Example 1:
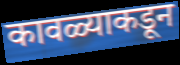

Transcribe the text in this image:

कावळ्याकडून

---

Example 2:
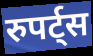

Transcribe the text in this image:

रुपर्ट्स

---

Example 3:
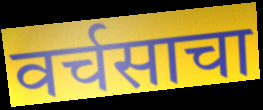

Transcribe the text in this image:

वर्चसाचा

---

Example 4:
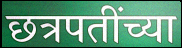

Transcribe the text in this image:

छत्रपतींच्या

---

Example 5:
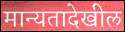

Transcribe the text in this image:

मान्यतादेखील